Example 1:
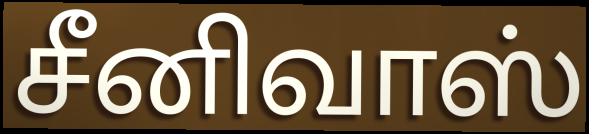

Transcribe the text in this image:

சீனிவாஸ்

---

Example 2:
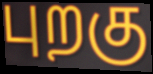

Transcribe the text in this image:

புறகு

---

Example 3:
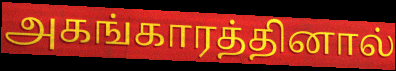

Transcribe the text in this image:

அகங்காரத்தினால்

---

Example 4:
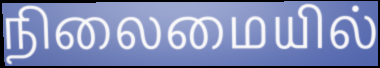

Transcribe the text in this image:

நிலைமையில்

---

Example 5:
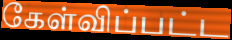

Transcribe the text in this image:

கேள்விப்பட்ட